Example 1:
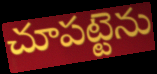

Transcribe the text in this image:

చూపట్టెను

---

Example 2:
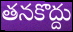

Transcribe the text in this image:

తనకొద్దు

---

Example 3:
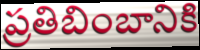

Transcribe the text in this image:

ప్రతిబింబానికి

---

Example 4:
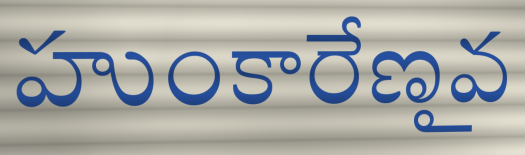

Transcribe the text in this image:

హుంకారేణౖవ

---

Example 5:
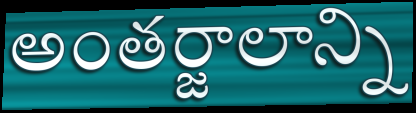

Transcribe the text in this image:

అంతర్జాలాన్ని